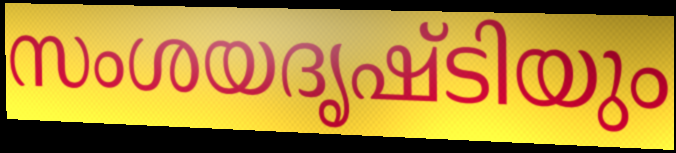
സംശയദൃഷ്ടിയും